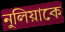
নুলিয়াকে